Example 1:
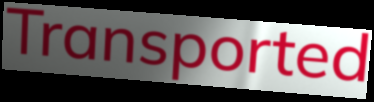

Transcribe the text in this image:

Transported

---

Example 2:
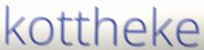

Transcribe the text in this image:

kottheke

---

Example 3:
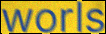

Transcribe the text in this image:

worls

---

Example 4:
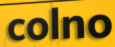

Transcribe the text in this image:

colno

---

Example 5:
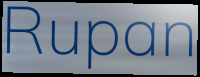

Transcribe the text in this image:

Rupan